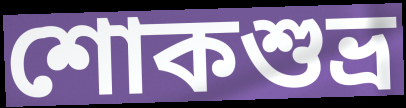
শোকশুভ্র